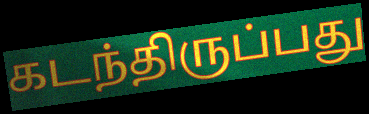
கடந்திருப்பது